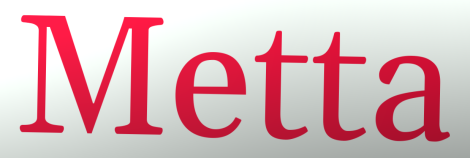
Metta